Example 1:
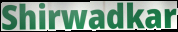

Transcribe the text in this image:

Shirwadkar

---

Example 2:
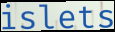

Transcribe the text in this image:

islets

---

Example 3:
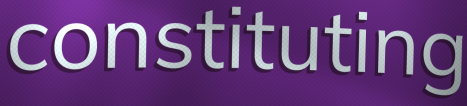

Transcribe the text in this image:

constituting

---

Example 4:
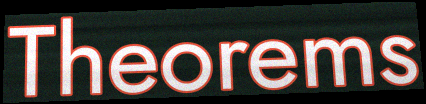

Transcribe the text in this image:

Theorems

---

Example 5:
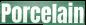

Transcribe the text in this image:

Porcelain